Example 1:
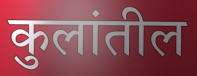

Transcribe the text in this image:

कुलांतील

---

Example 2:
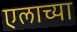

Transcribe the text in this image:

एलाच्या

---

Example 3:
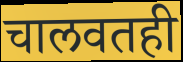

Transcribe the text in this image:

चालवतही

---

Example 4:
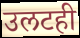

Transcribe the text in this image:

उलटही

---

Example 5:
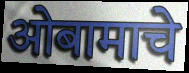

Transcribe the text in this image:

ओबामाचे